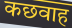
कछवाह